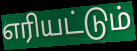
எரியட்டும்